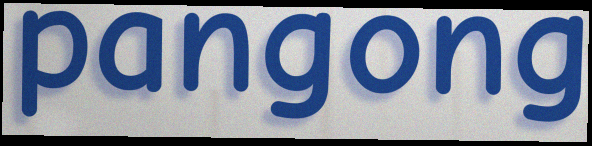
pangong